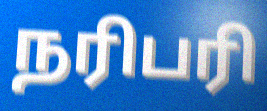
நரிபரி